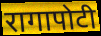
रागापोटी